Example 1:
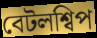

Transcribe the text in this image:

বেটলশ্বিপ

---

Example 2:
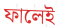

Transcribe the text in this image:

ফালেই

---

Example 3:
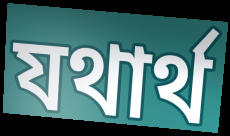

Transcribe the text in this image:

যথাৰ্থ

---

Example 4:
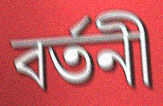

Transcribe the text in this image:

বৰ্তনী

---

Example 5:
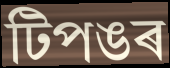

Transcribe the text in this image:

টিপঙৰ